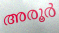
അരൂർ